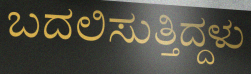
ಬದಲಿಸುತ್ತಿದ್ದಳು